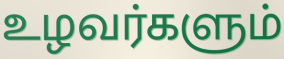
உழவர்களும்